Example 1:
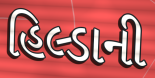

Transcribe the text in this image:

હિલ્ડાની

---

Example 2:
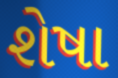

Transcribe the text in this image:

શેષા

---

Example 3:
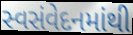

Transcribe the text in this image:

સ્વસંવેદનમાંથી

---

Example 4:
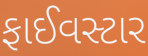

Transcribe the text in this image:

ફાઈવસ્ટાર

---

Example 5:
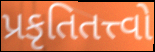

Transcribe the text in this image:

પ્રકૃતિતત્ત્વો